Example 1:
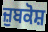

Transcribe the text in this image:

ਜ਼ੁਬਕੋਸ਼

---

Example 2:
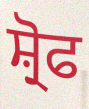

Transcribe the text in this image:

ਸ਼੍ਰੋਫ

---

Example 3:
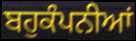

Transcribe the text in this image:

ਬਹੁਕੰਪਨੀਆਂ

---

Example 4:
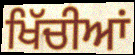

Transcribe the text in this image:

ਖਿੱਚੀਆਂ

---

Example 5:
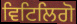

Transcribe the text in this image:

ਵਿਟਿਲਿਗੋ